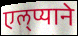
एल्प्याने